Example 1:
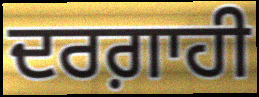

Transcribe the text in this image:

ਦਰਗ਼ਾਹੀ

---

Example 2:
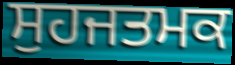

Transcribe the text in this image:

ਸੁਹਜਤਮਕ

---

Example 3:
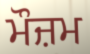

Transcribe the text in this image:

ਮੌਜ਼ਮ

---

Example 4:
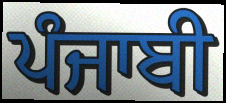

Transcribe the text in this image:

ਪੰਜਾਬੀ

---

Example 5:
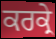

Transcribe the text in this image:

ਕਰਕ੍ਰੇ